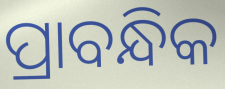
ପ୍ରାବନ୍ଧିକ